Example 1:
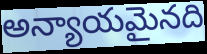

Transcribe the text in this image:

అన్యాయమైనది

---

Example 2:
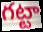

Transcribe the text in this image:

గట్టా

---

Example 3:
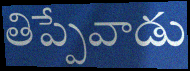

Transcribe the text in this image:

తిప్పేవాడు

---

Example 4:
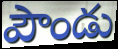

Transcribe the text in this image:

పౌండు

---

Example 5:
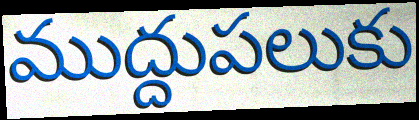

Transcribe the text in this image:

ముద్దుపలుకు